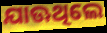
ଯାଊଥିଲେ